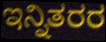
ಇನ್ನಿತರರ